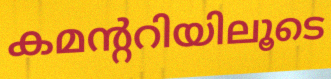
കമന്ററിയിലൂടെ